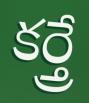
కర్త్రే